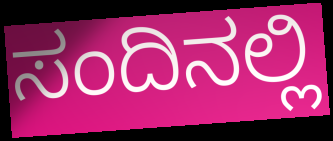
ಸಂದಿನಲ್ಲಿ